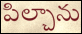
పిల్చాను